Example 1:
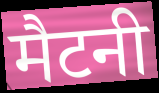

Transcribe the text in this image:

मैटनी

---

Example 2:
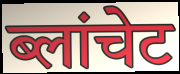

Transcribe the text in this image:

ब्लांचेट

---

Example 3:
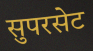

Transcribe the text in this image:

सुपरसेट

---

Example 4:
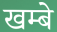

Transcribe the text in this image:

खम्बे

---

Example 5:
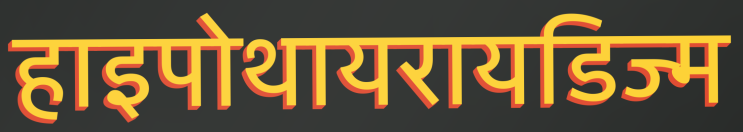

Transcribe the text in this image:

हाइपोथायरायडिज्म